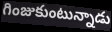
గింజుకుంటున్నాడు